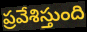
ప్రవేశిస్తుంది